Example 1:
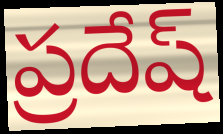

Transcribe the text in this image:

ప్రదేష్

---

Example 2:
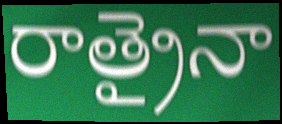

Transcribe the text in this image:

రాత్రైనా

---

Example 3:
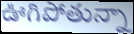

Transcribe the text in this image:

ఊగిపోతున్నా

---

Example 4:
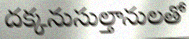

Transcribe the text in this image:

దక్కనుసుల్తానులతో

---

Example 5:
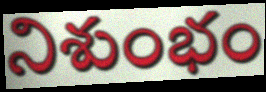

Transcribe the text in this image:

నిశుంభం